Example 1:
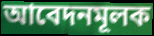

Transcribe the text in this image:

আবেদনমূলক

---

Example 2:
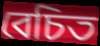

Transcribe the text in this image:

বেচিত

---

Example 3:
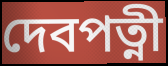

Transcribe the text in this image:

দেবপত্নী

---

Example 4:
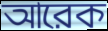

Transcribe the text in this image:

আরেক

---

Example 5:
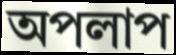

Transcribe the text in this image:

অপলাপ